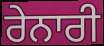
ਰੇਨਾਰੀ